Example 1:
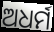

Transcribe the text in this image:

ଅଧର୍ମ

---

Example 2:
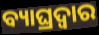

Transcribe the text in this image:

ବ୍ୟାଘ୍ରଦ୍ଵାର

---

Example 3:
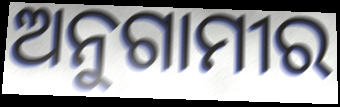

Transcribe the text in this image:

ଅନୁଗାମୀର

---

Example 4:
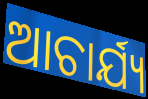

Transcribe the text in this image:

ଆଚାର୍ଯ୍ୟ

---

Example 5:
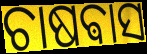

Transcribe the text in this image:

ଚାଷଵାସ